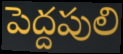
పెద్దపులి